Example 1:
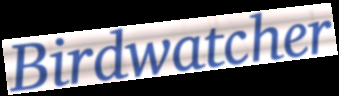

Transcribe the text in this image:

Birdwatcher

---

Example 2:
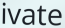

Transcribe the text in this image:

ivate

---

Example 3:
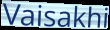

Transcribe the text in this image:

Vaisakhi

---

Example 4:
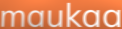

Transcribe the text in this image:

maukaa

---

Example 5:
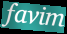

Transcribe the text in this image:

favim